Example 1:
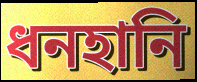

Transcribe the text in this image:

ধনহানি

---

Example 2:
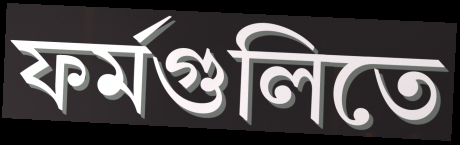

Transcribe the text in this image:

ফর্মগুলিতে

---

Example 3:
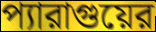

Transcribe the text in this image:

প্যারাগুয়ের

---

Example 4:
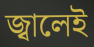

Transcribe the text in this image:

জ্বালেই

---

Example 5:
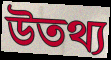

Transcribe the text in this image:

উতথ্য